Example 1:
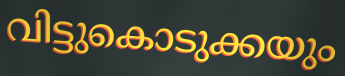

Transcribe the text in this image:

വിട്ടുകൊടുക്കയും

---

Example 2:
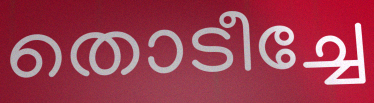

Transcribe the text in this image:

തൊടീച്ചേ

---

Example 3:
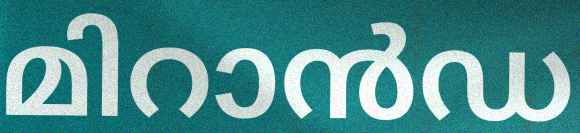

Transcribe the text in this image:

മിറാൻഡ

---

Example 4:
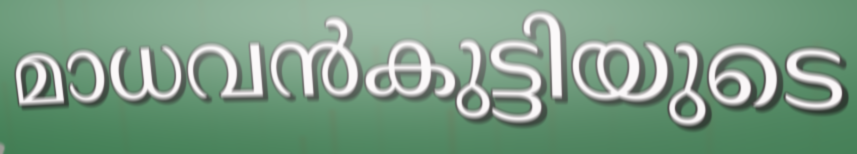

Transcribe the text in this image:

മാധവൻകുട്ടിയുടെ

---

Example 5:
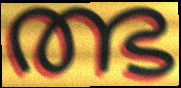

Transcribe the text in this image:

ത്ഭ